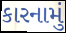
કારનામું